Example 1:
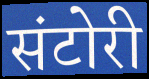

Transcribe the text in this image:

संटोरी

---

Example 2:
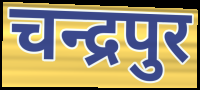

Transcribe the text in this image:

चन्द्रपुर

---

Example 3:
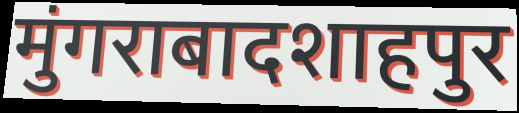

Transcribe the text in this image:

मुंगराबादशाहपुर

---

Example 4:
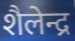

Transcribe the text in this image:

शैलेन्द्र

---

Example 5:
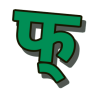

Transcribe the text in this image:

फ्